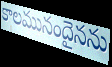
కాలమునందైనను